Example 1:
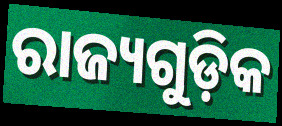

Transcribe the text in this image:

ରାଜ୍ୟଗୁଡ଼ିକ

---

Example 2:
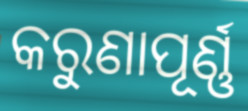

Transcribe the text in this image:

କରୁଣାପୂର୍ଣ୍ଣ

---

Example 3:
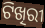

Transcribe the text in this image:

ଟିଖିରୀ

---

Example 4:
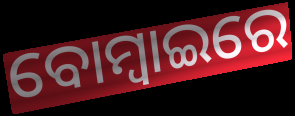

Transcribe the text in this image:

ବୋମ୍ୱାଇରେ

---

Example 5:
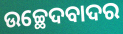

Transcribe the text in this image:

ଉଚ୍ଛେଦବାଦର